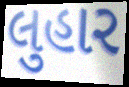
લુહાર